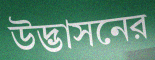
উদ্ভাসনের